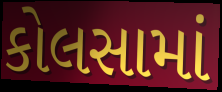
કોલસામાં